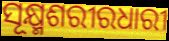
ସୂକ୍ଷ୍ମଶରୀରଧାରୀ